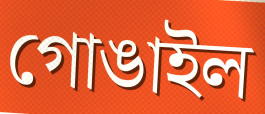
গোঙাইল